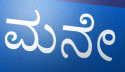
ಮನೇ